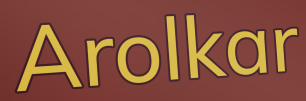
Arolkar